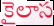
కైలాస